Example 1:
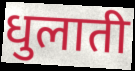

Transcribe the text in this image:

धुलाती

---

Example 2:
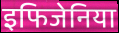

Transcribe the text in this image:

इफिजेनिया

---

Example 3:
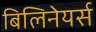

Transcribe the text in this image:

बिलिनेयर्स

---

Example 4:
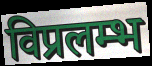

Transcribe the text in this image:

विप्रलम्भ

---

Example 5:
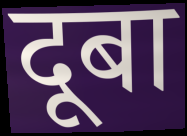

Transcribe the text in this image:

दूबा